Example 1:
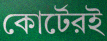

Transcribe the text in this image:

কোর্টেরই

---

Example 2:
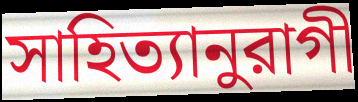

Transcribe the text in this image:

সাহিত্যানুরাগী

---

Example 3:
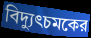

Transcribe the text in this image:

বিদ্যুৎচমকের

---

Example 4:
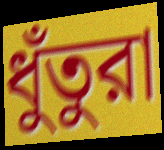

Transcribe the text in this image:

ধুঁতুরা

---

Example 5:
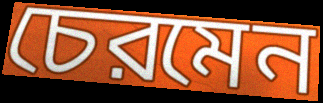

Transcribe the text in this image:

চেরমেন